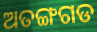
ଅତଙ୍ଗଗଡ